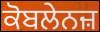
ਕੋਬਲੇਨਜ਼